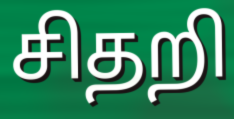
சிதறி